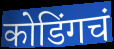
कोडिंगचं